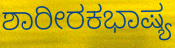
ಶಾರೀರಕಭಾಷ್ಯ